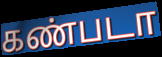
கண்படா